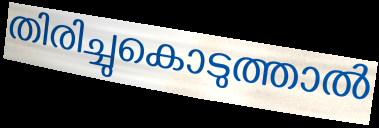
തിരിച്ചുകൊടുത്താൽ